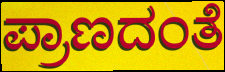
ಪ್ರಾಣದಂತೆ